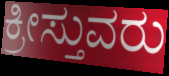
ಕ್ರೀಸ್ತುವರು